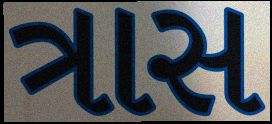
ત્રાસ